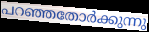
പറഞ്ഞതോർക്കുന്നു